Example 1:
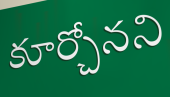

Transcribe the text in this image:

కూర్చోనని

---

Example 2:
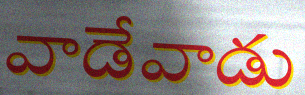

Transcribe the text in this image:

వాడేవాడు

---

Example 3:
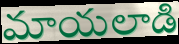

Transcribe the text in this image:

మాయలాడి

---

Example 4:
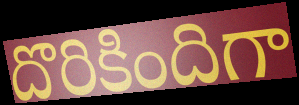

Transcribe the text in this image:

దొరికిందిగా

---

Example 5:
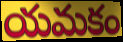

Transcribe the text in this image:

యమకం